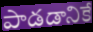
పాడడానికే